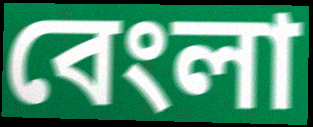
বেংলা